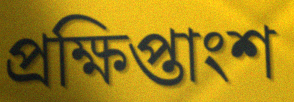
প্রক্ষিপ্তাংশ